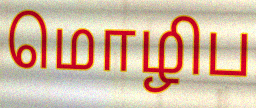
மொழிப